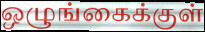
ஒழுங்கைக்குள்